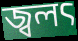
জ্বলৎ